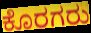
ಕೊರಗರು